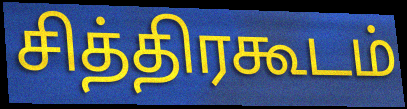
சித்திரகூடம்